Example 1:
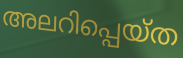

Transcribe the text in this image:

അലറിപ്പെയ്ത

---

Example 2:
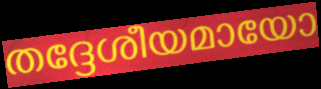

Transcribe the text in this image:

തദ്ദേശീയമായോ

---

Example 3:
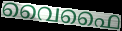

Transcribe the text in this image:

വൈഫൈ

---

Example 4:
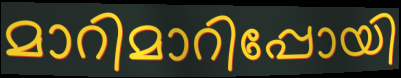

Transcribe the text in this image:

മാറിമാറിപ്പോയി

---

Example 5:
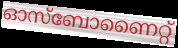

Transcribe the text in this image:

ഓസ്ബോണൈറ്റ്